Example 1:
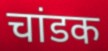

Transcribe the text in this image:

चांडक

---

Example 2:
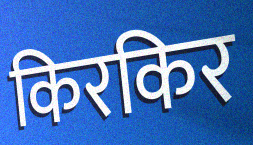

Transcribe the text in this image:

किरकिर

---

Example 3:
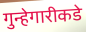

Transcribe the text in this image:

गुन्हेगारीकडे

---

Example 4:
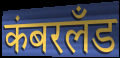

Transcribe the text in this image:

कंबरलँड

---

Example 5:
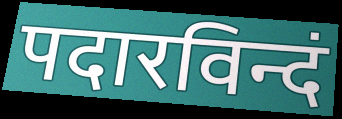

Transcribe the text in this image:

पदारविन्दं